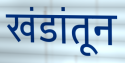
खंडांतून